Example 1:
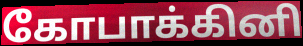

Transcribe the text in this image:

கோபாக்கினி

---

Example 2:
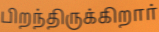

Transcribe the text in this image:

பிறந்திருக்கிறார்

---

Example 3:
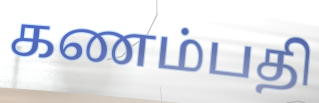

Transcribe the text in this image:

கணம்பதி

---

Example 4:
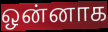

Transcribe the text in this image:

ஒன்னாக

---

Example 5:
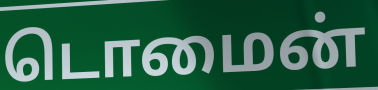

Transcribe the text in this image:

டொமைன்